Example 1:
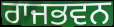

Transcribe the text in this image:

ਰਾਜਭਵਨ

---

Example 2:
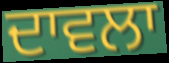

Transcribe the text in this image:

ਦਾਵਲਾ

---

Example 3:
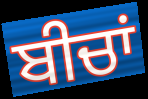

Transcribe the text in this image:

ਬੀਚਾਂ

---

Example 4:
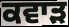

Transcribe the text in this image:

ਕਵਾੜ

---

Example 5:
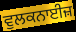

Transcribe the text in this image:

ਵੁਲਕਨਾਈਜ਼